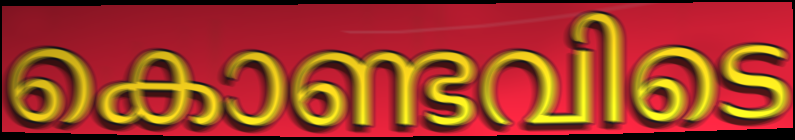
കൊണ്ടവിടെ